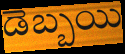
డెబ్బయి